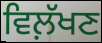
ਵਿਲ਼ੱਖਣ